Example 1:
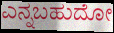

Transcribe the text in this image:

ಎನ್ನಬಹುದೋ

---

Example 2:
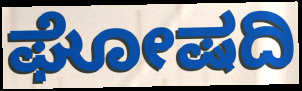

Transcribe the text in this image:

ಘೋಷದಿ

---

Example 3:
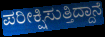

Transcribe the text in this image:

ಪರೀಕ್ಷಿಸುತ್ತಿದ್ದಾನೆ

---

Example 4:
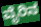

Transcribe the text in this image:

ವೈರಿನ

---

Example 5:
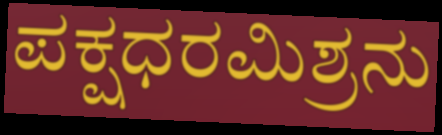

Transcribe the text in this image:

ಪಕ್ಷಧರಮಿಶ್ರನು